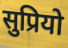
सुप्रियो